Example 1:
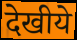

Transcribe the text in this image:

देखीये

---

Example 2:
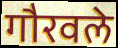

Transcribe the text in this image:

गौरवले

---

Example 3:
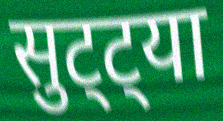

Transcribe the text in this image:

सुट्ट्या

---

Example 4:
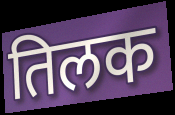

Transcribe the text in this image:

तिलक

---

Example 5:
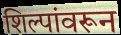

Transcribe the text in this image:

शिल्पांवरून